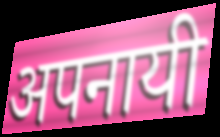
अपनायी